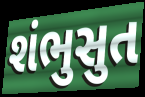
શંભુસુત